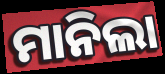
ମାନିଲା